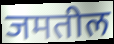
जमतील